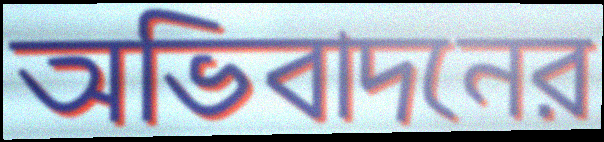
অভিবাদনের